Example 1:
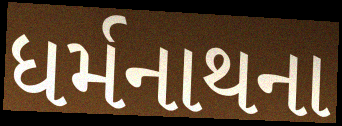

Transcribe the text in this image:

ધર્મનાથના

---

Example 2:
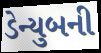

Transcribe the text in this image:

ડેન્યુબની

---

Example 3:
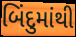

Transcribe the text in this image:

બિંદુમાંથી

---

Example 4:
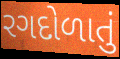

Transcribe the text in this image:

રગદોળાતું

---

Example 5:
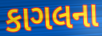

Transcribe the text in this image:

કાગલના